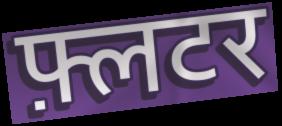
फ़्लटर